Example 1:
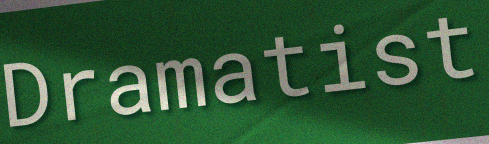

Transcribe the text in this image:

Dramatist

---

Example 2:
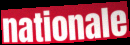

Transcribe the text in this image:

nationale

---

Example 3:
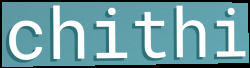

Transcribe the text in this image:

chithi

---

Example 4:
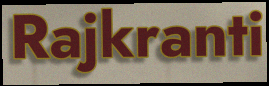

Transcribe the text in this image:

Rajkranti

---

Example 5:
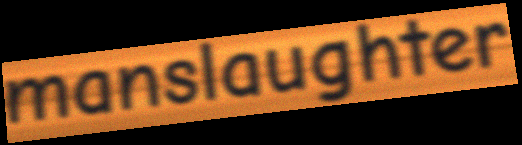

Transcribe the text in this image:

manslaughter